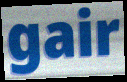
gair